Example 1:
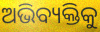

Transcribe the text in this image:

ଅଭିବ୍ୟକ୍ତିକୁ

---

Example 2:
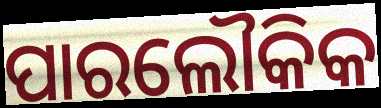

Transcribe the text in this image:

ପାରଲୌକିକ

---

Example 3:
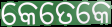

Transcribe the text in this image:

କେତେକେ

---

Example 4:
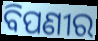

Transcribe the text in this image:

ବିପଣୀର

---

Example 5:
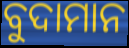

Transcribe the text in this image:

ବୁଦାମାନ